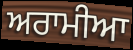
ਅਰਾਮੀਆ